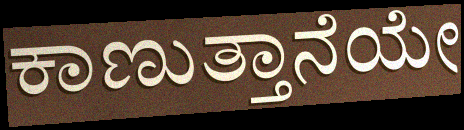
ಕಾಣುತ್ತಾನೆಯೇ